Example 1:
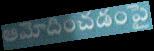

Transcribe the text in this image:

ఆమోదించడంపై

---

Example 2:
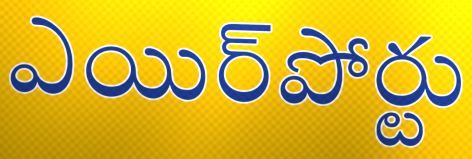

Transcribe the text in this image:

ఎయిర్‌పోర్టు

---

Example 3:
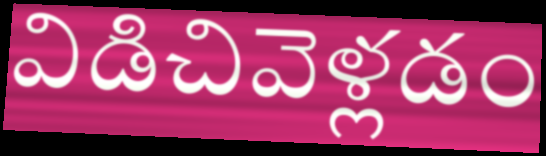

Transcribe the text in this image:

విడిచివెళ్లడం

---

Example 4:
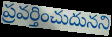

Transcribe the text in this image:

ప్రవర్తించుదునని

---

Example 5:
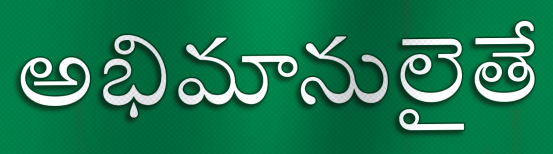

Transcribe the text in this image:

అభిమానులైతే